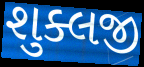
શુક્લજી